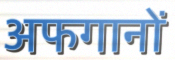
अफगानों